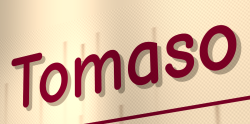
Tomaso